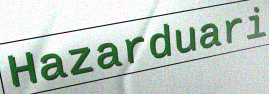
Hazarduari